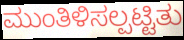
ಮುಂತಿಳಿಸಲ್ಪಟ್ಟಿತು